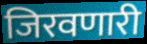
जिरवणारी